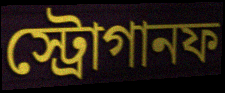
স্ট্রোগানফ